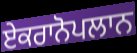
ਏਕਰਾਨੋਪਲਾਨ